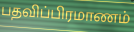
பதவிப்பிரமாணம்